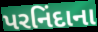
પરનિંદાના